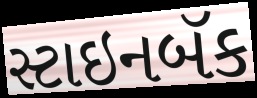
સ્ટાઇનબૅક